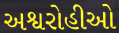
અશ્વરોહીઓ